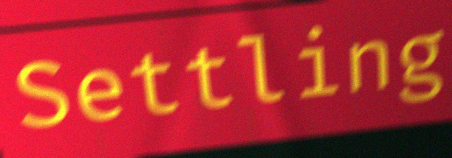
Settling